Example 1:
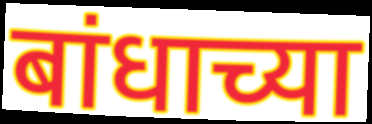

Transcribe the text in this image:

बांधाच्या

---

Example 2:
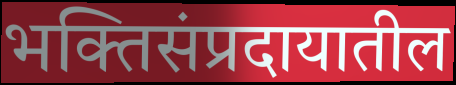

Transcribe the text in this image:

भक्तिसंप्रदायातील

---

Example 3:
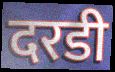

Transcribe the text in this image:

दरडी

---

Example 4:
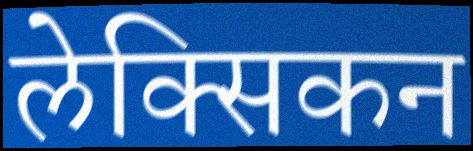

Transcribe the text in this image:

लेक्सिकन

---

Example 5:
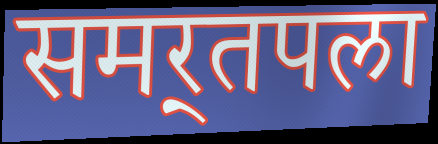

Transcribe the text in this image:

समर्तपला